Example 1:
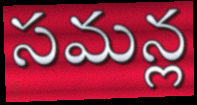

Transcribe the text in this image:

సమన్ల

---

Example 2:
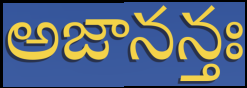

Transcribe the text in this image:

అజానన్తః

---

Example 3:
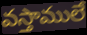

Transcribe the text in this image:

వస్తాములే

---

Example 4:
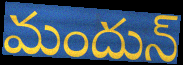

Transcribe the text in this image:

మందున్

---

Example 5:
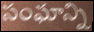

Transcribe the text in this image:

సంఘాన్ని